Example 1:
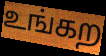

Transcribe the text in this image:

உங்கற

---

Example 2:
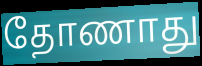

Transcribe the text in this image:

தோணாது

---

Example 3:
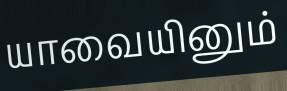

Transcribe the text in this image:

யாவையினும்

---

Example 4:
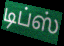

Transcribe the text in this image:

டிப்ஸ்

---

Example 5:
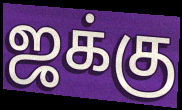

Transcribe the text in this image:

ஜக்கு